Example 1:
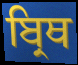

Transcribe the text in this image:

ਬ੍ਰਿਥ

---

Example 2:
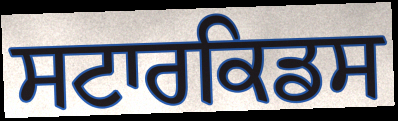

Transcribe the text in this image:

ਸਟਾਰਕਿਡਸ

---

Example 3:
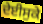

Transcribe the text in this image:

ਦੇਈਸੁਕੇ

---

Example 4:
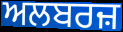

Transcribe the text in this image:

ਅਲਬਰਜ਼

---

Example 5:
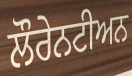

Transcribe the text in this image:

ਲੌਰੇਨਟੀਅਨ